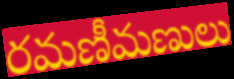
రమణీమణులు